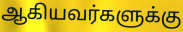
ஆகியவர்களுக்கு